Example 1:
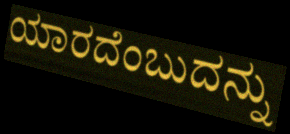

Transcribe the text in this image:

ಯಾರದೆಂಬುದನ್ನು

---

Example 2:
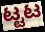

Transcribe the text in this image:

ಟ್ಟಟ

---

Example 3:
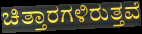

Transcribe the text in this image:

ಚಿತ್ತಾರಗಳಿರುತ್ತವೆ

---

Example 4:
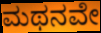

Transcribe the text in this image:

ಮಥನವೇ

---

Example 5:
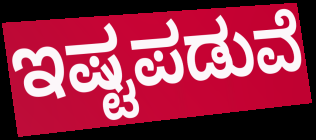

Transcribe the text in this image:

ಇಷ್ಟಪಡುವೆ